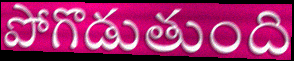
పోగొడుతుంది